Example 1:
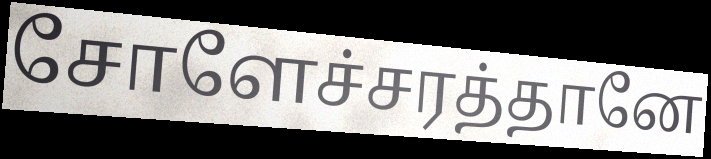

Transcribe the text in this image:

சோளேச்சரத்தானே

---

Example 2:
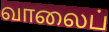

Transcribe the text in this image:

வாலைப்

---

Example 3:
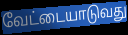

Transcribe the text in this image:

வேட்டையாடுவது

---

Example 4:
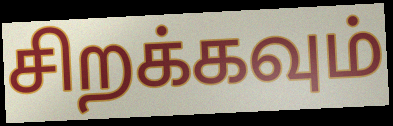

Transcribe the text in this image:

சிறக்கவும்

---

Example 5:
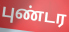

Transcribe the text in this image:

புண்டர